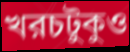
খরচটুকুও